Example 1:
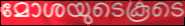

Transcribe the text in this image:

മോശയുടെകൂടെ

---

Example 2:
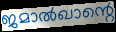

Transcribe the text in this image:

ജമാൽഖാന്റെ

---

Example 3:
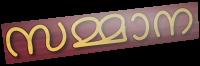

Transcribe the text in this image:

സമ്മാന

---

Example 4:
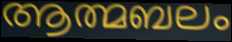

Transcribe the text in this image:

ആത്മബലം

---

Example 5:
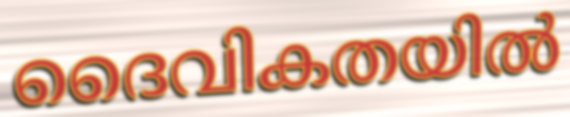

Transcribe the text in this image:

ദൈവികതയിൽ